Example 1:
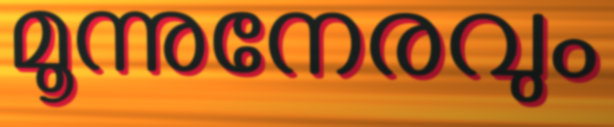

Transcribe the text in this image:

മൂന്നുനേരവും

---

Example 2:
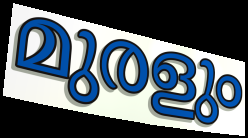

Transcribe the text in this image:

മുരളും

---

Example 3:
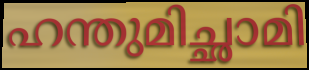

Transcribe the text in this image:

ഹന്തുമിച്ഛാമി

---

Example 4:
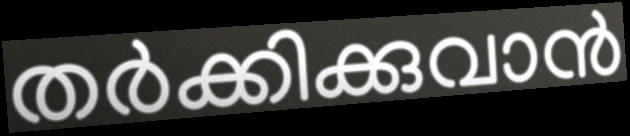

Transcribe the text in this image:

തർക്കിക്കുവാൻ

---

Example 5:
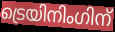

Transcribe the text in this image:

ട്രെയിനിംഗിന്